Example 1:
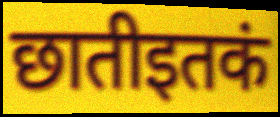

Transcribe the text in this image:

छातीइतकं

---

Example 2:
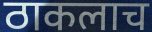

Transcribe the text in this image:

ठाकलाच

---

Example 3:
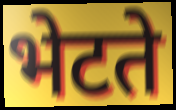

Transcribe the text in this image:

भेटते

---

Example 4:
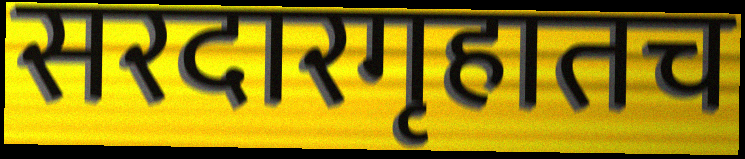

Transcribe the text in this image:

सरदारगृहातच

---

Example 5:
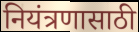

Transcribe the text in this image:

नियंत्रणासाठी